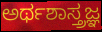
ಅರ್ಥಶಾಸ್ತ್ರಜ್ಞ